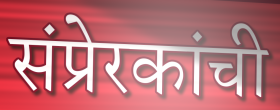
संप्रेरकांची